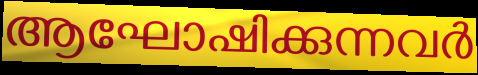
ആഘോഷിക്കുന്നവർ